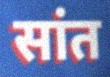
सांत